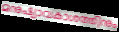
മനുഷ്യാവകാശത്തിനും